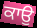
ਕਾਉ